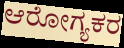
ಆರೋಗ್ಯಕರ